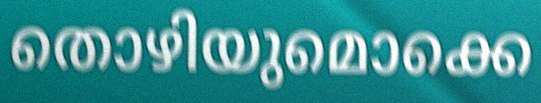
തൊഴിയുമൊക്കെ